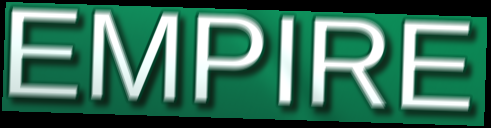
EMPIRE